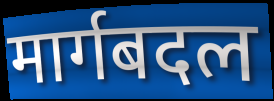
मार्गबदल